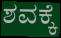
ಶವಕ್ಕೆ